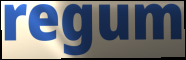
regum